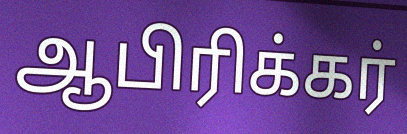
ஆபிரிக்கர்